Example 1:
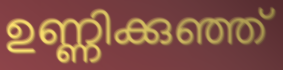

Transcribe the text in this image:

ഉണ്ണിക്കുഞ്ഞ്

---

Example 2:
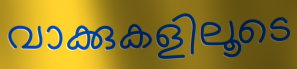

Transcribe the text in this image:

വാക്കുകളിലൂടെ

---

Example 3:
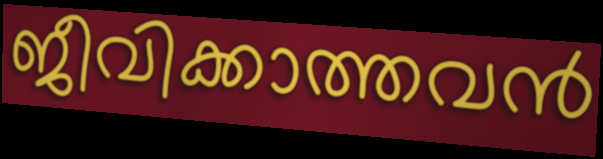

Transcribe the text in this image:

ജീവിക്കാത്തവൻ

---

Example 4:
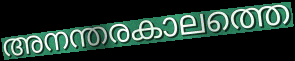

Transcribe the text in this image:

അനന്തരകാലത്തെ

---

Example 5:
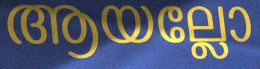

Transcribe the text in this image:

ആയല്ലോ